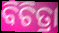
ବିଚିତ୍ରା